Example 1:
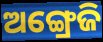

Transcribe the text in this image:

ଅଙ୍ଗ୍ରେଜି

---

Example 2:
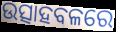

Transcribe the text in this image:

ଉତ୍ସାହବଳରେ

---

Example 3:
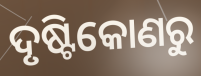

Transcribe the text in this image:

ଦୃଷ୍ଟିକୋଣରୁ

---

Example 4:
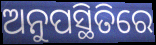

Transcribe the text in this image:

ଅନୁପସ୍ଥିତିରେ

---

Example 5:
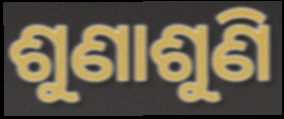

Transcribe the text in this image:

ଶୁଣାଶୁଣି